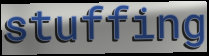
stuffing